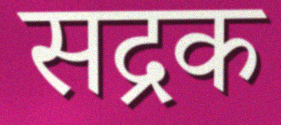
सद्रक